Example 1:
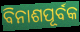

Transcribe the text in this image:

ବିନାଶପୂର୍ବକ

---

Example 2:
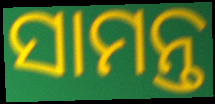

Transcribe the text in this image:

ସାମନ୍ତ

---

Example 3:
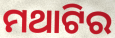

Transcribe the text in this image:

ମଥାଟିର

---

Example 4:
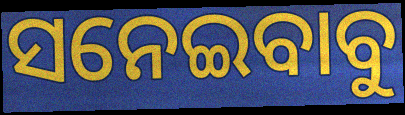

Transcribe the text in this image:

ସନେଇବାବୁ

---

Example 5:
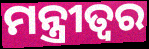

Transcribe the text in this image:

ମନ୍ତ୍ରୀତ୍ୱର